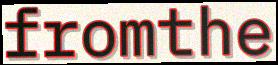
fromthe